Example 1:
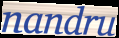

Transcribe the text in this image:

nandru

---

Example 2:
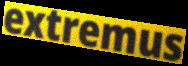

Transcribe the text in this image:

extremus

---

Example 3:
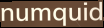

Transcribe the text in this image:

numquid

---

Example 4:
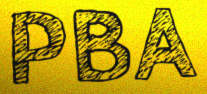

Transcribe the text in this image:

PBA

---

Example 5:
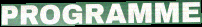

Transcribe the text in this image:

PROGRAMME